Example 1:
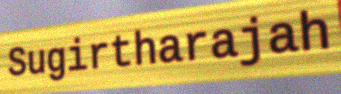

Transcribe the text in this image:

Sugirtharajah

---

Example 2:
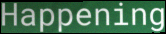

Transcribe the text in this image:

Happening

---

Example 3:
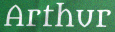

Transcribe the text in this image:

Arthur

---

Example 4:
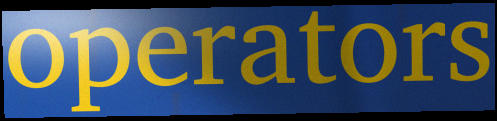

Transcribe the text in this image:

operators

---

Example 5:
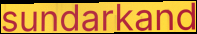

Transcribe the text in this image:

sundarkand